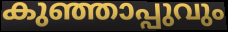
കുഞ്ഞാപ്പുവും